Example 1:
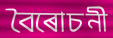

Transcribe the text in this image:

বৈৰোচনী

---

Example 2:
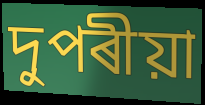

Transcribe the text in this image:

দুপৰীয়া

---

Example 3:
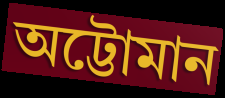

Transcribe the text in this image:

অট্টোমান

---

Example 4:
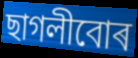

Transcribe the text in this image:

ছাগলীবোৰ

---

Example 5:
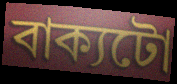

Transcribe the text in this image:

বাক্য়টো